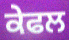
ਕੇਫਲ